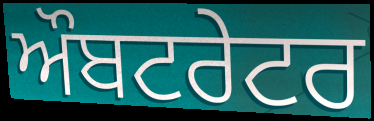
ਔਬਟਰੇਟਰ